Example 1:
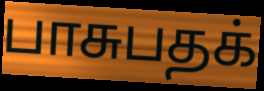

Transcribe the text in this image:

பாசுபதக்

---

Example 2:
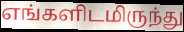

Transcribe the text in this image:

எங்களிடமிருந்து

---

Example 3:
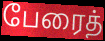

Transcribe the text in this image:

பேரைத்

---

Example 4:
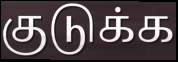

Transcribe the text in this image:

குடுக்க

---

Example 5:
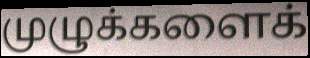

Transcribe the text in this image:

முழுக்களைக்